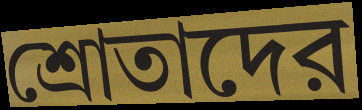
শ্রোতাদের